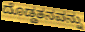
ದೊಡ್ಡತನವನ್ನು